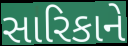
સારિકાને